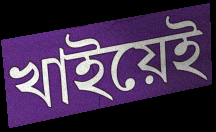
খাইয়েই